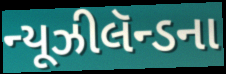
ન્યૂઝીલૅન્ડના